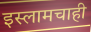
इस्लामचाही